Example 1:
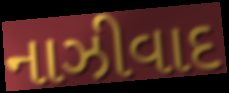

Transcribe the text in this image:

નાઝીવાદ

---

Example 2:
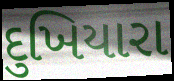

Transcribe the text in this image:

દુખિયારા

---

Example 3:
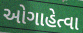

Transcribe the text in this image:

ઓગાહેત્વા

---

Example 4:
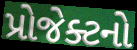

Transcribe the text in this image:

પ્રોજેક્ટનો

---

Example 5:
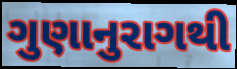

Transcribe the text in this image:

ગુણાનુરાગથી